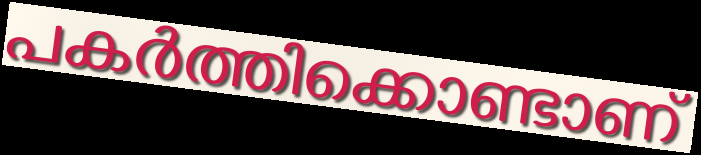
പകർത്തിക്കൊണ്ടാണ്